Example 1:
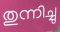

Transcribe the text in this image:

തുന്നിച്ചു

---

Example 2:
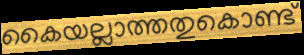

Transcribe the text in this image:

കൈയല്ലാത്തതുകൊണ്ട്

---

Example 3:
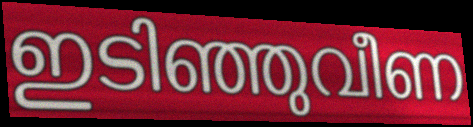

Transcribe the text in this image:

ഇടിഞ്ഞുവീണ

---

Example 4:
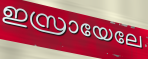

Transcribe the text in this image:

ഇസ്രായേലേ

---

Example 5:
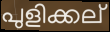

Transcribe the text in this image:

പുളിക്കല്